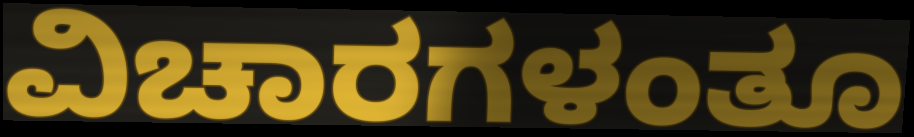
ವಿಚಾರಗಳಂತೂ